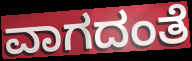
ವಾಗದಂತೆ